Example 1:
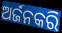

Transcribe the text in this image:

ଅର୍ଜନକରି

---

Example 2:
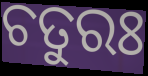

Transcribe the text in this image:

ଚତୁରଃ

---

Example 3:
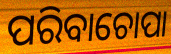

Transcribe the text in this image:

ପରିବାଚୋପା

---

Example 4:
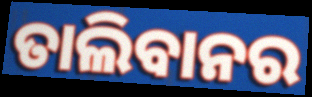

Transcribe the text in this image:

ତାଲିବାନର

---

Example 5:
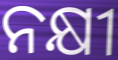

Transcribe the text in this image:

ନକ୍ଷୀ